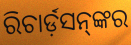
ରିଚାର୍ଡ଼ସନ୍‌ଙ୍କର